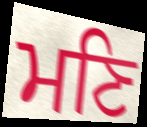
ਮਣਿ